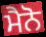
ਮੈਨੋ